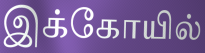
இக்கோயில்